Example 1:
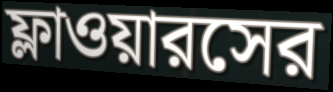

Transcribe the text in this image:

ফ্লাওয়ারসের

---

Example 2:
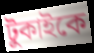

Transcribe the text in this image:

টুকাইকে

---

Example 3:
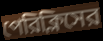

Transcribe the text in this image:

পেরিক্লিসের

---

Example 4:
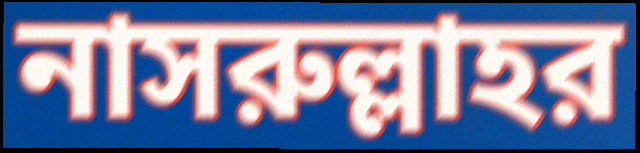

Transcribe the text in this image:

নাসরুল্লাহর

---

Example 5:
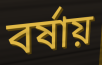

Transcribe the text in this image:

বর্ষায়